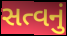
સત્વનું